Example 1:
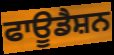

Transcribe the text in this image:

ਫਾਊਡੈਸ਼ਨ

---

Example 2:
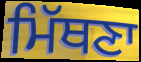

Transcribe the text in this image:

ਮਿੱਥਣਾ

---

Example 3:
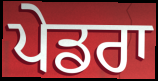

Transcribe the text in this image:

ਪੇਡਰਾ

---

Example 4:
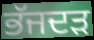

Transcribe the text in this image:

ਭੱਜਦੜ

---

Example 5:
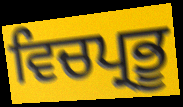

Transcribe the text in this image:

ਵਿਚਪ੍ਰਭੂ